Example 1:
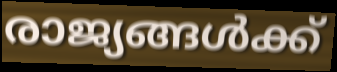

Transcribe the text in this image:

രാജ്യങ്ങൾക്ക്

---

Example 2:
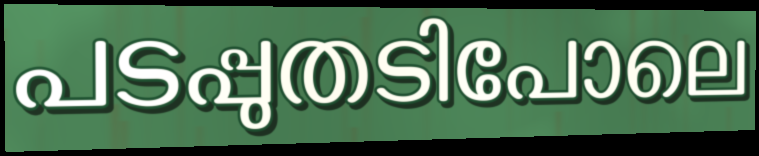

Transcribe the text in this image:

പടപ്പുതടിപോലെ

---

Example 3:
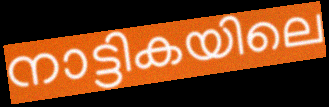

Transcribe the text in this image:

നാട്ടികയിലെ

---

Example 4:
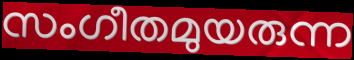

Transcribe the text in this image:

സംഗീതമുയരുന്ന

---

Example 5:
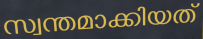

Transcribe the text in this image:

സ്വന്തമാക്കിയത്